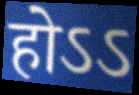
होऽऽ